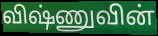
விஷ்ணுவின்